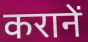
करानें